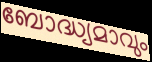
ബോദ്ധ്യമാവും